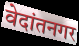
वेदांतनगर